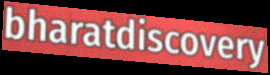
bharatdiscovery